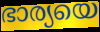
ഭാര്യയെ